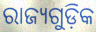
ରାଜ୍ୟଗୁଡ଼ିକ